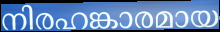
നിരഹങ്കാരമായ